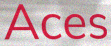
Aces